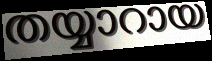
തയ്യാറായ